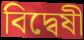
বিদ্বেষী